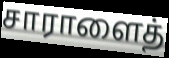
சாராளைத்